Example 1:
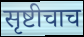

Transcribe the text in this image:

सृष्टीचाच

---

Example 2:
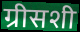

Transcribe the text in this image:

ग्रीसशी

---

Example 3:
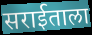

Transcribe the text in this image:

सराईताला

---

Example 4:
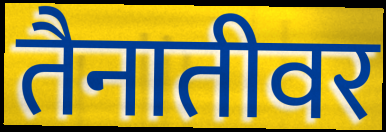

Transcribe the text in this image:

तैनातीवर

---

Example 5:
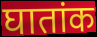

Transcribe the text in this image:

घातांक